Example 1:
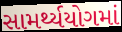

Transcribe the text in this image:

સામર્થ્યયોગમાં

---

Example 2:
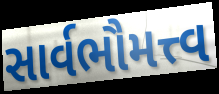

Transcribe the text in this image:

સાર્વભૌમત્ત્વ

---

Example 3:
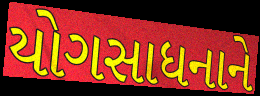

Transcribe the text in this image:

યોગસાધનાને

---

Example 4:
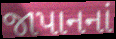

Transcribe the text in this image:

જાપાનનાં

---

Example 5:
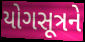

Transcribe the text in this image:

યોગસૂત્રને